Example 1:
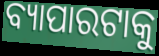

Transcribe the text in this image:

ବ୍ୟାପାରଟାକୁ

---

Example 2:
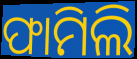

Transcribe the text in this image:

ଫାମିଲି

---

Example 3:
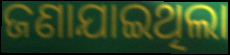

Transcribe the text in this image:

ଜଣାଯାଇଥିଲା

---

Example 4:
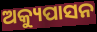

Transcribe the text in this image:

ଅକ୍ୟୁପାସନ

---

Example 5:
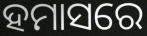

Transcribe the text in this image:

ହମାସରେ